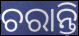
ଚରାନ୍ତି